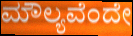
ಮೌಲ್ಯವೆಂದೇ